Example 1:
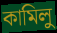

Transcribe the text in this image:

কামিলু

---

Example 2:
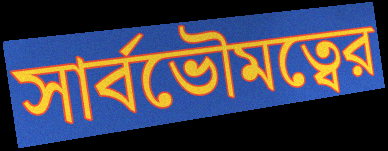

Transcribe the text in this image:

সার্বভৌমত্বের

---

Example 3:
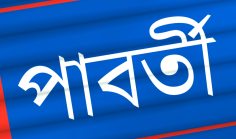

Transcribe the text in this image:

পাবর্তী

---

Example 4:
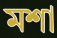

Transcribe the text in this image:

মশা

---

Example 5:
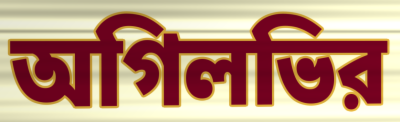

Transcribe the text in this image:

অগিলভির